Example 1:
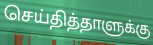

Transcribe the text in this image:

செய்தித்தாளுக்கு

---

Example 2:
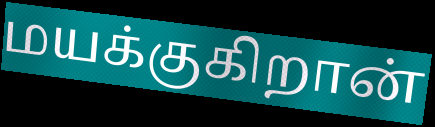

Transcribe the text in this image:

மயக்குகிறான்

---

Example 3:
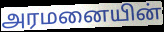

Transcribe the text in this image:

அரமனையின்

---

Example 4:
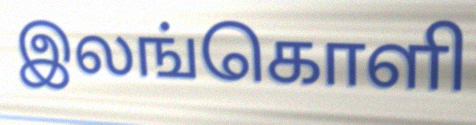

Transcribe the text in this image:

இலங்கொளி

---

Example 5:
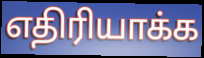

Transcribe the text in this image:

எதிரியாக்க